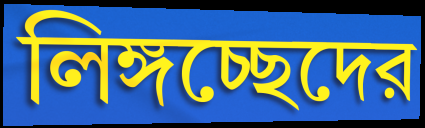
লিঙ্গচ্ছেদের